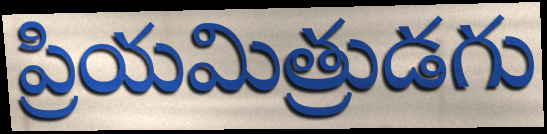
ప్రియమిత్రుడగు